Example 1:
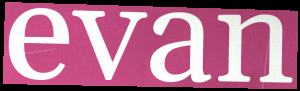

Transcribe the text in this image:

evan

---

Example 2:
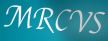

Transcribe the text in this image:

MRCVS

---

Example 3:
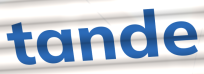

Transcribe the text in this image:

tande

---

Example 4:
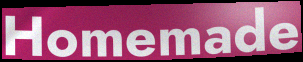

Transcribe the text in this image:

Homemade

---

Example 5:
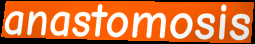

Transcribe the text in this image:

anastomosis